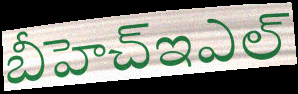
బీహెచ్ఇఎల్